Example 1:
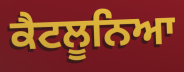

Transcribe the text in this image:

ਕੈਟਲੂਨਿਆ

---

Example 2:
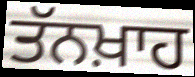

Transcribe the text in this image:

ਤੱਨਖ਼ਾਹ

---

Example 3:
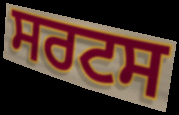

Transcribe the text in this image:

ਸਰਟਸ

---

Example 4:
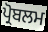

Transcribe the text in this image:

ਪ੍ਰੋਬਲਮ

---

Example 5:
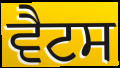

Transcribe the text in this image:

ਵੈਟਸ